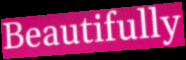
Beautifully